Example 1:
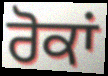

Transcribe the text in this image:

ਰੋਕਾਂ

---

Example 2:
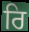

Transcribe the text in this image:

ਰਿ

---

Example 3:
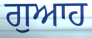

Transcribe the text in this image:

ਗੁਆਹ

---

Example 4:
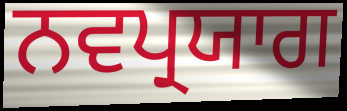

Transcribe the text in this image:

ਨਵਪ੍ਰਯਾਗ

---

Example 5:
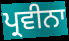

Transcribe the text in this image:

ਪ੍ਰਵੀਨਾ